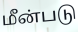
மீன்படு